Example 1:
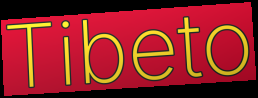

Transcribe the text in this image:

Tibeto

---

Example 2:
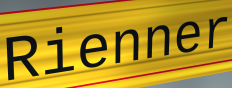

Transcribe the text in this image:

Rienner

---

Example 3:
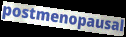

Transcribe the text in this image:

postmenopausal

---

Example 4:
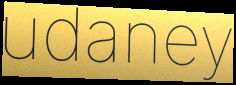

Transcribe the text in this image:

udaney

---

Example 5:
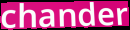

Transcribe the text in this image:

chander